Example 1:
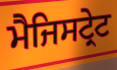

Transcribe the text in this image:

ਮੈਜਿਸਟ੍ਰੇਟ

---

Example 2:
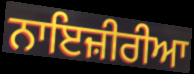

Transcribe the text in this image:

ਨਾਇਜ਼ੀਰੀਆ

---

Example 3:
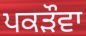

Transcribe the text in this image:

ਪਕੜੌਵਾ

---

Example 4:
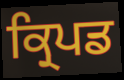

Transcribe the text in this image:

ਕ੍ਰਿਪਡ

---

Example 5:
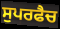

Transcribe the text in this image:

ਸੁਪਰਫੈਚ